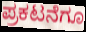
ಪ್ರಕಟನೆಗೂ